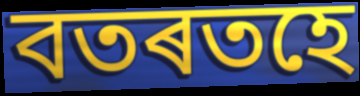
বতৰতহে